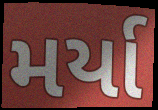
મર્યા